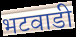
भटवाडी